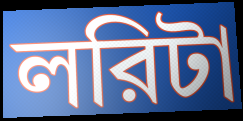
লরিটা